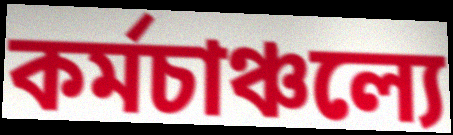
কর্মচাঞ্চল্যে